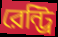
রেন্ট্রি